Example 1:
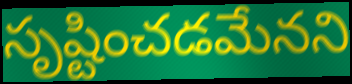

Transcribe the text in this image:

సృష్టించడమేనని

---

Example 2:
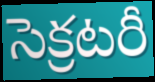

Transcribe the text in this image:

సెక్రటరీ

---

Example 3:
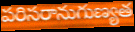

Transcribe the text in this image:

పరిసరానుగుణ్యత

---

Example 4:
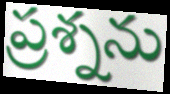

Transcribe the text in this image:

ప్రశ్నను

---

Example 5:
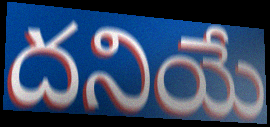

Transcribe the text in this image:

దనియే